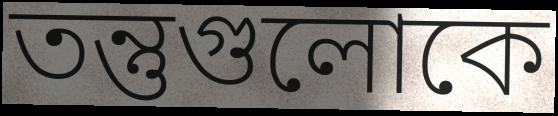
তন্তুগুলোকে